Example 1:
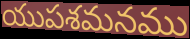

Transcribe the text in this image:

యుపశమనము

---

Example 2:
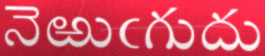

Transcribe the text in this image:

నెఱుఁగుదు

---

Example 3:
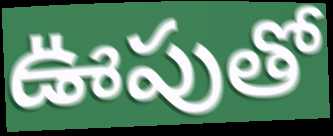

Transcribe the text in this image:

ఊపుతో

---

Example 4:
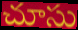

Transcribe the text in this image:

చూసు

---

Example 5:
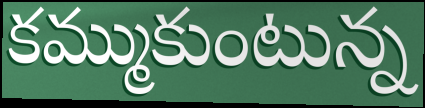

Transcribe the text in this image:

కమ్ముకుంటున్న